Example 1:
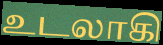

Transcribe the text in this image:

உடலாகி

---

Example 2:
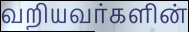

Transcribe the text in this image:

வறியவர்களின்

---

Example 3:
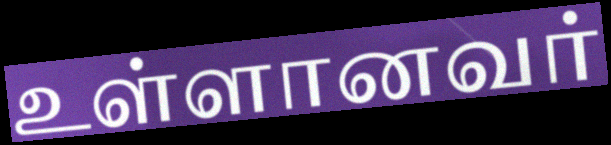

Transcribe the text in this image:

உள்ளானவர்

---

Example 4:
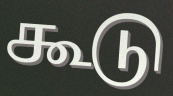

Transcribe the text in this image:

கூடு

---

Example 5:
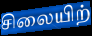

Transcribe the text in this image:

சிலையிற்